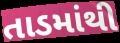
તાડમાંથી